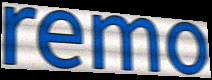
remo